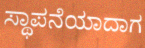
ಸ್ಥಾಪನೆಯಾದಾಗ